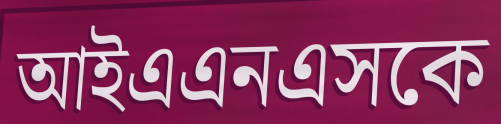
আইএএনএসকে